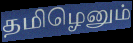
தமிழெனும்